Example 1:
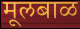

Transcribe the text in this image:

मूलबाळ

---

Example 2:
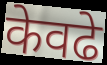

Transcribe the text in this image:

केवढे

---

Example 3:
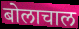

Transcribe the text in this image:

बोलाचाल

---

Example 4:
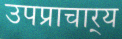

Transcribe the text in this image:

उपप्राचार्य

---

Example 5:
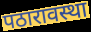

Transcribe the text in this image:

पठारावस्था